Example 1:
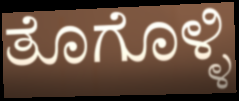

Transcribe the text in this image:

ತೊಗೊಳ್ಳಿ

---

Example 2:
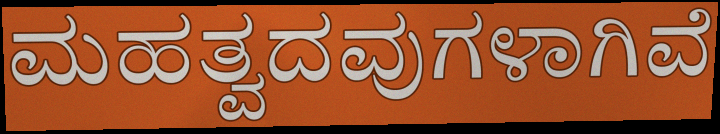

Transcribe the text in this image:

ಮಹತ್ವದವುಗಳಾಗಿವೆ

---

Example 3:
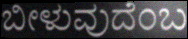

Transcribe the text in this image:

ಬೀಳುವುದೆಂಬ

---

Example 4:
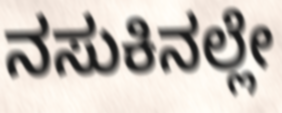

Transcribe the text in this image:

ನಸುಕಿನಲ್ಲೇ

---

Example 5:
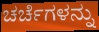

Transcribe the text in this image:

ಚರ್ಚೆಗಳನ್ನು